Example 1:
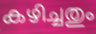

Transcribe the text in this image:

കഴിച്ചതും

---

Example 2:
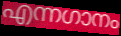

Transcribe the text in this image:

എന്നഗാനം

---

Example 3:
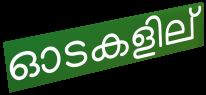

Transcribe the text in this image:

ഓടകളില്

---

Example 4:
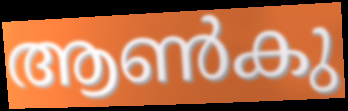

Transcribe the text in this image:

ആൺകു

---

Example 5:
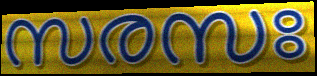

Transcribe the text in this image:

സരസഃ